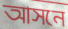
আসনে